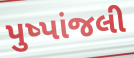
પુષ્પાંજલી